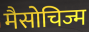
मैसोचिज्म